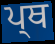
ਪ੍ਥ